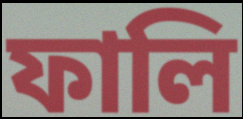
ফালি